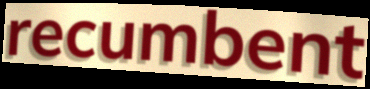
recumbent